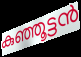
കുഞ്ഞൂട്ടൻ